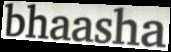
bhaasha